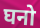
घनो